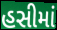
હસીમાં